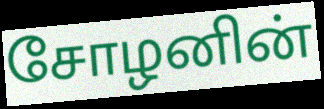
சோழனின்